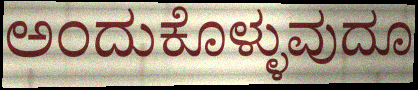
ಅಂದುಕೊಳ್ಳುವುದೂ